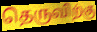
தெருவிற்கு